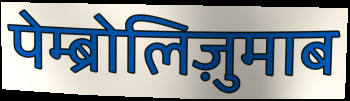
पेम्ब्रोलिज़ुमाब